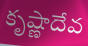
కృష్ణాదేవ